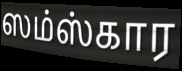
ஸம்ஸ்கார